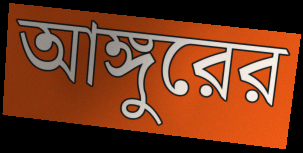
আঙ্গুরের